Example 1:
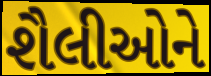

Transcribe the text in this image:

શૈલીઓને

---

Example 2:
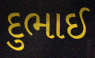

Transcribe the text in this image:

દુભાઈ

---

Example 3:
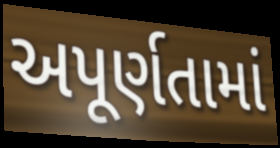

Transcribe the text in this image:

અપૂર્ણતામાં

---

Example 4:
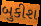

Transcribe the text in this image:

બુકીશ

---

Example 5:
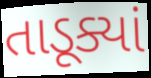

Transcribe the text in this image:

તાડૂક્યાં